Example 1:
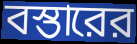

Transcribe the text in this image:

বস্তারের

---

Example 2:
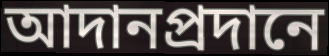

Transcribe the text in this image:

আদানপ্রদানে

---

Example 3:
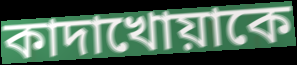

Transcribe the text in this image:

কাদাখোয়াকে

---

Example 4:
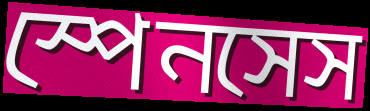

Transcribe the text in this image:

স্পেনসেস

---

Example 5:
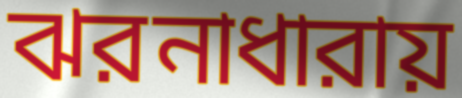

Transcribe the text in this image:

ঝরনাধারায়